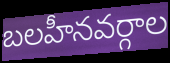
బలహీనవర్గాల